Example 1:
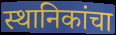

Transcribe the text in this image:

स्थानिकांचा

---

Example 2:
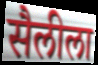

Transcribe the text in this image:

सैलीला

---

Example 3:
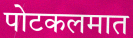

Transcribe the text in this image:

पोटकलमात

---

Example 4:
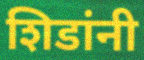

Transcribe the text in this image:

शिडांनी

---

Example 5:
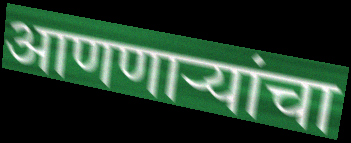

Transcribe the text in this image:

आणणाऱ्यांचा